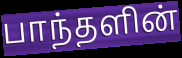
பாந்தளின்